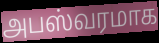
அபஸ்வரமாக